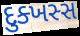
દુક્ખસ્સ